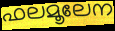
ഫലമൂലേന